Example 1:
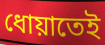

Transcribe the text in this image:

ধোয়াতেই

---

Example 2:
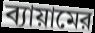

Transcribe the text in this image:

ব্যায়ামের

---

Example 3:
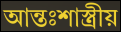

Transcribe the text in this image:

আন্তঃশাস্ত্রীয়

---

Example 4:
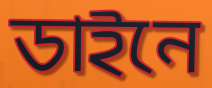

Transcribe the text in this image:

ডাইনে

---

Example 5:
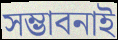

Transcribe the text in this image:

সম্ভাবনাই